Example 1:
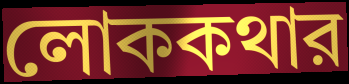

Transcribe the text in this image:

লোককথার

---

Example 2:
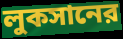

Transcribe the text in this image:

লুকসানের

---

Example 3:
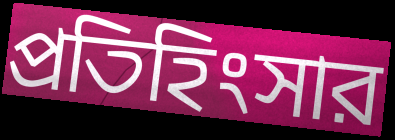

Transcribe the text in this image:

প্রতিহিংসার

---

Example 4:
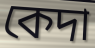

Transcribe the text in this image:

কেদা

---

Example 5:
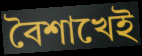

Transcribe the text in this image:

বৈশাখেই